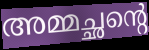
അമ്മച്ഛന്റെ